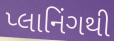
પ્લાનિંગથી